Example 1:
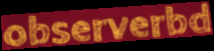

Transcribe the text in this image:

observerbd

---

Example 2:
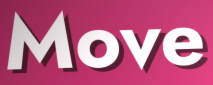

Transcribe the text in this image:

Move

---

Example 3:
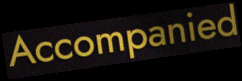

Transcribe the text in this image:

Accompanied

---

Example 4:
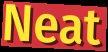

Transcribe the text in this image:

Neat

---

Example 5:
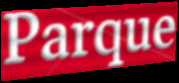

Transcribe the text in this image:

Parque